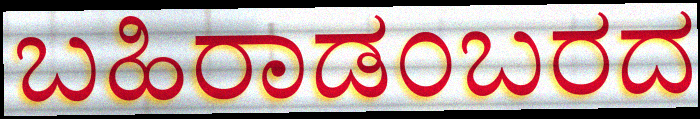
ಬಹಿರಾಡಂಬರದ